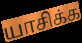
யாசிக்க